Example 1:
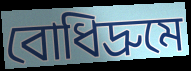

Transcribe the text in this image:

বোধিদ্রুমে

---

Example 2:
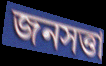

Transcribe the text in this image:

জনসত্তা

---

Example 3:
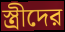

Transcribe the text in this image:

স্ত্রীদের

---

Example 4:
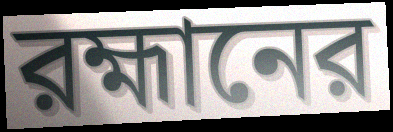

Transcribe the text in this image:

রহ্মানের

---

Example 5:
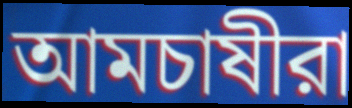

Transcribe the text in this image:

আমচাষীরা